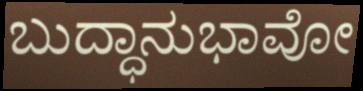
ಬುದ್ಧಾನುಭಾವೋ